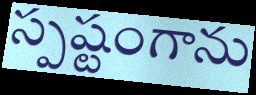
స్పష్టంగాను